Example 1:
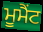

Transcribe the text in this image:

ਮੂਮੈਂਟ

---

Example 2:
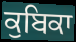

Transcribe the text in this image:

ਕੁਬਿਕਾ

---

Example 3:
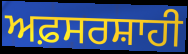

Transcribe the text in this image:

ਅਫ਼ਸਰਸ਼ਾਹੀ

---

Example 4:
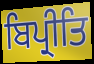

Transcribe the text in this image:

ਬਿਪ੍ਰੀਤਿ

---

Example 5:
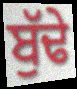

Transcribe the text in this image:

ਬੁੱਢੇ